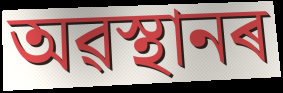
অৱস্থানৰ